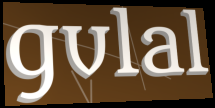
gulal